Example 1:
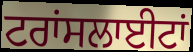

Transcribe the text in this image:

ਟਰਾਂਸਲਾਈਟਾਂ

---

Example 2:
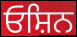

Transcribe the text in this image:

ਓਸ਼ਿਨ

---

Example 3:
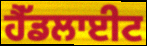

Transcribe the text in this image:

ਹੈੱਡਲਾਈਟ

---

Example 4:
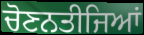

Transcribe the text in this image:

ਚੋਣਨਤੀਜਿਆਂ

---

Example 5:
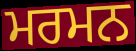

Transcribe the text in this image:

ਮਰਮਨ